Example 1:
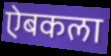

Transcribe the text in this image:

ऐबकला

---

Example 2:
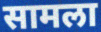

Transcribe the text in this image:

सामला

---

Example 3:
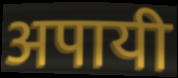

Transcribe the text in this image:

अपायी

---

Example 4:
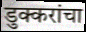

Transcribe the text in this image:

डुक्करांचा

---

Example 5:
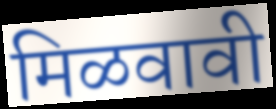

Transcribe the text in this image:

मिळवावी